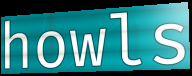
howls